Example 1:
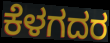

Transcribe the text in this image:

ಕೆಳಗದರ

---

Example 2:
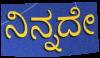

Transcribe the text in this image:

ನಿನ್ನದೇ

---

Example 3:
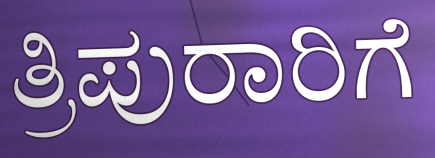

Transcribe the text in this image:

ತ್ರಿಪುರಾರಿಗೆ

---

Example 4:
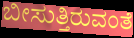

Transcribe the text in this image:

ಬೀಸುತ್ತಿರುವಂತೆ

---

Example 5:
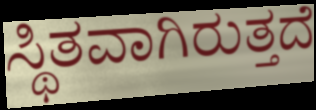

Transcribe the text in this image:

ಸ್ಥಿತವಾಗಿರುತ್ತದೆ